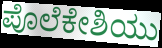
ಪೊಲೆಕೇಶಿಯು